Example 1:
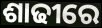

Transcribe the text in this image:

ଶାଢୀରେ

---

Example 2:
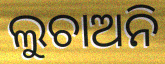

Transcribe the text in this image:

ଲୁଚାଅନି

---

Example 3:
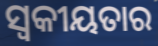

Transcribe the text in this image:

ସ୍ୱକୀୟତାର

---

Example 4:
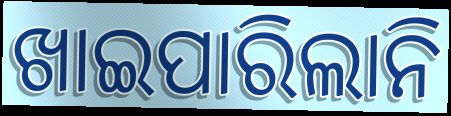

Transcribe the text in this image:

ଖାଇପାରିଲାନି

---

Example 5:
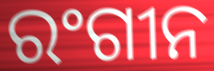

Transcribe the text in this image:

ରଂଗୀନ